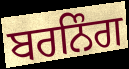
ਬਰਨਿੰਗ